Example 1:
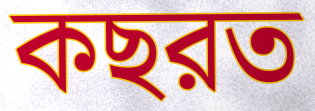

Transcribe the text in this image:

কছরত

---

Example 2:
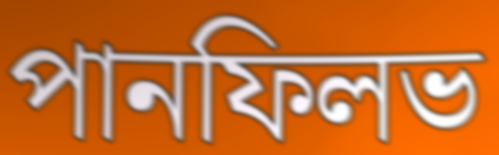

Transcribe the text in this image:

পানফিলভ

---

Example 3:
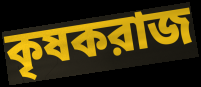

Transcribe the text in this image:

কৃষকরাজ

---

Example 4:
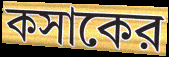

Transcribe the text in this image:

কসাকের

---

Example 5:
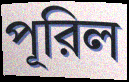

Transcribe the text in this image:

পূরিল